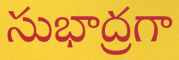
సుభాద్రగా